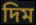
দিম